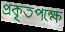
প্রকৃতপক্ষে